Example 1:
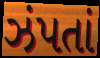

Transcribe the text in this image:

ઝંપતાં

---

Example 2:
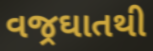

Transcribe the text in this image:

વજ્રઘાતથી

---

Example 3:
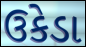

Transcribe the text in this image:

ઉકેડા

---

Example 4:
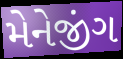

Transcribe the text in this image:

મેનેજીંગ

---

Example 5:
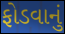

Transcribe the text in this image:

ફોડવાનું